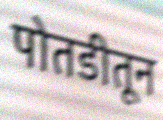
पोतडीतून